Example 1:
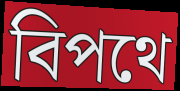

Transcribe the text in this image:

বিপথে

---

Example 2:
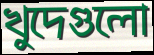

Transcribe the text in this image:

খুদেগুলো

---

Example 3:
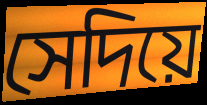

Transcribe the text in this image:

সেদিয়ে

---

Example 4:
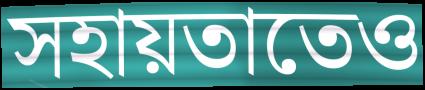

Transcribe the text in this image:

সহায়তাতেও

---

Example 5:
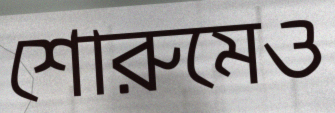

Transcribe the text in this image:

শোরুমেও